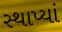
સ્થાપ્યાં